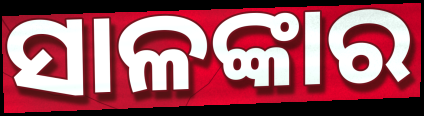
ସାଳଙ୍କାର